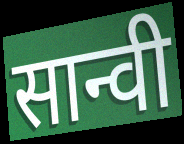
सान्वी